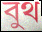
বুথ